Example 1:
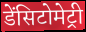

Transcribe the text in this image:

डेंसिटोमेट्री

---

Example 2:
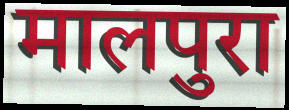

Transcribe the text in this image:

मालपुरा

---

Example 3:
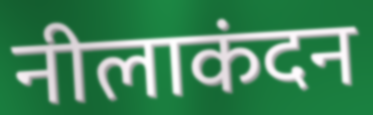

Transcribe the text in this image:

नीलाकंदन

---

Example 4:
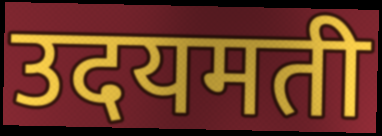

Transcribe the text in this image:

उदयमती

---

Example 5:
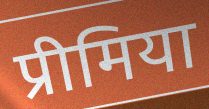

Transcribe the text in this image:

प्रीमिया